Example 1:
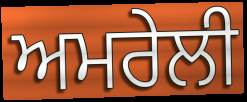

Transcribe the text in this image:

ਅਮਰੇਲੀ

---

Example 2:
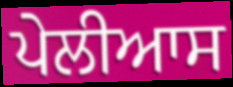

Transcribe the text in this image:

ਪੇਲੀਆਸ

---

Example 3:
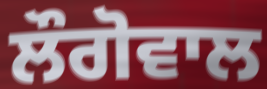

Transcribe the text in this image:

ਲੌਗੋਵਾਲ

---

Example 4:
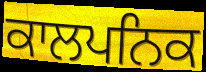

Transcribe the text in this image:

ਕਾਲਪਨਿਕ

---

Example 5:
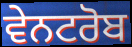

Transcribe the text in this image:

ਵੇਨਟਰੋਬ